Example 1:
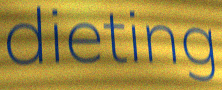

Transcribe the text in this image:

dieting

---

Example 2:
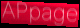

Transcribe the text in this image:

APpage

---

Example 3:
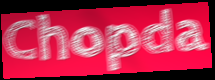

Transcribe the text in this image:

Chopda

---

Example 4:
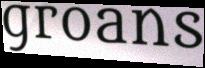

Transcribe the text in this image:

groans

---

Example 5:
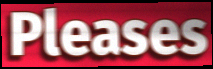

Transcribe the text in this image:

Pleases